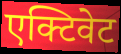
एक्टिवेट